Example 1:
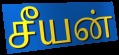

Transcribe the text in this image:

சீயன்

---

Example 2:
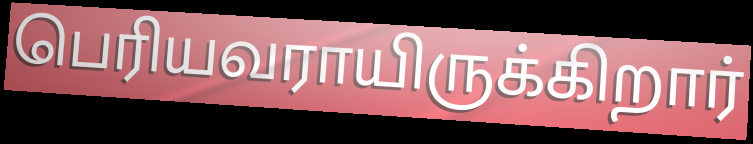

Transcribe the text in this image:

பெரியவராயிருக்கிறார்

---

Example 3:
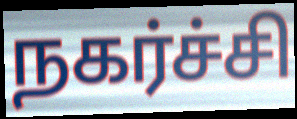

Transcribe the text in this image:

நகர்ச்சி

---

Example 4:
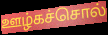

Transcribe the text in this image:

ஊழ்கச்சொல்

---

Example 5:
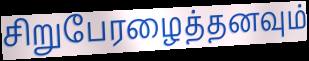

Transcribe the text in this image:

சிறுபேரழைத்தனவும்